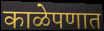
काळेपणात